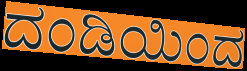
ದಂಡಿಯಿಂದ